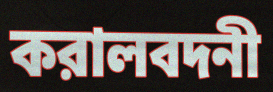
করালবদনী